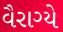
વૈરાગ્યે